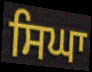
ਸਿਘਾ